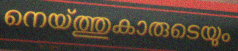
നെയ്ത്തുകാരുടെയും